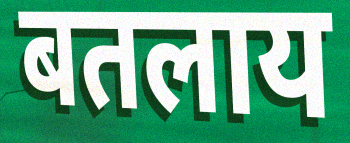
बतलाय